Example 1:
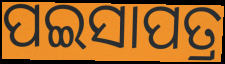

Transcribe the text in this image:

ପଇସାପତ୍ର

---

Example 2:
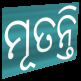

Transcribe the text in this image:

ମୂତନ୍ତି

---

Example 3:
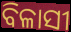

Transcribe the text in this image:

ବିଳାସୀ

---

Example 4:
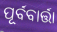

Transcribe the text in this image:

ପୂର୍ବବାର୍ତ୍ତା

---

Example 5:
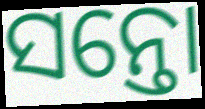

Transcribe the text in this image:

ସନ୍ତୋ